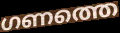
ഗണത്തെ